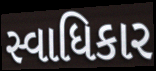
સ્વાધિકાર